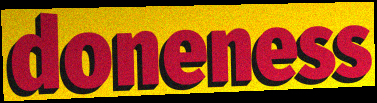
doneness